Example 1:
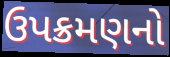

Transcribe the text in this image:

ઉપક્રમણનો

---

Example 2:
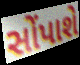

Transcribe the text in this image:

સોંપાશે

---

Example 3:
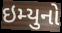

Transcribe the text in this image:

ઇમ્યુનો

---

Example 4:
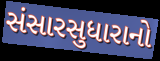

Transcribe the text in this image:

સંસારસુધારાનો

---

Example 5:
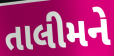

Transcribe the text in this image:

તાલીમને